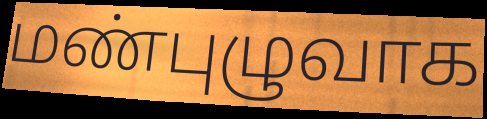
மண்புழுவாக